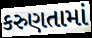
કરુણતામાં